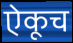
ऐकूच